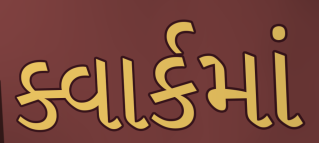
ક્વાર્કમાં